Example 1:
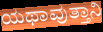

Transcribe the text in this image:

ಯಥಾವುತ್ತಾನಿ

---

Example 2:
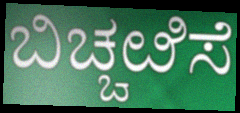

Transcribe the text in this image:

ಬಿಚ್ಚೞಿಸೆ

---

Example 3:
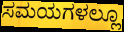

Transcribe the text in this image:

ಸಮಯಗಳಲ್ಲೂ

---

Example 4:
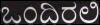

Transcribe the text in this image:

ಒಂದಿರಲಿ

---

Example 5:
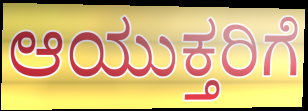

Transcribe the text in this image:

ಆಯುಕ್ತರಿಗೆ